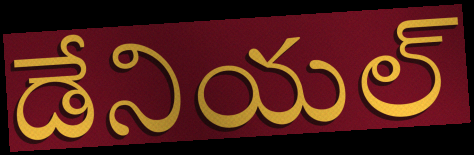
డేనియల్